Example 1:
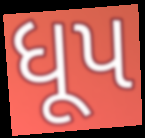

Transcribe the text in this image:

ધૂપ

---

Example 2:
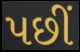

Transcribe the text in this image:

પછીં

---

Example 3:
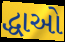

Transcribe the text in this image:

દ્ધાઓ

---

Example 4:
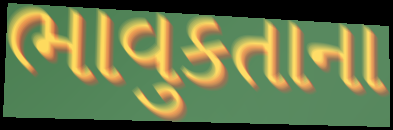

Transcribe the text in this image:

ભાવુકતાના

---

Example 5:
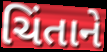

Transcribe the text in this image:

ચિંતાને